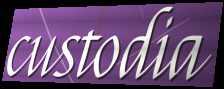
custodia